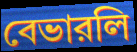
বেভারলি